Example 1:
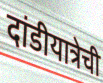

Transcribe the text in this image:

दांडीयात्रेची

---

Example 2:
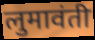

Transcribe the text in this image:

लुमावंती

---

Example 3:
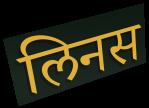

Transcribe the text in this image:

लिनस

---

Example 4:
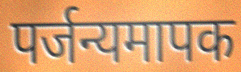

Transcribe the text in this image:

पर्जन्यमापक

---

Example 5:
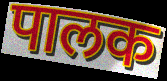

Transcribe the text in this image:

पालक